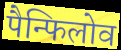
पैन्फिलोव